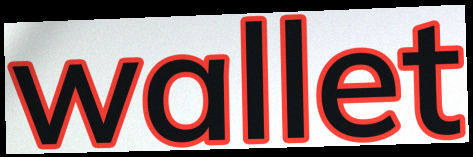
wallet